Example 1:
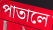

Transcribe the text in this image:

পাতালে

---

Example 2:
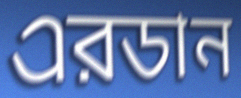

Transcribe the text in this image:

এরডান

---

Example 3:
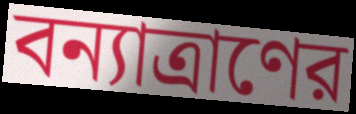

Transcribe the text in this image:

বন্যাত্রাণের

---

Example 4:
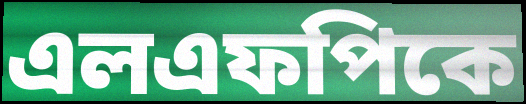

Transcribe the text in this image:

এলএফপিকে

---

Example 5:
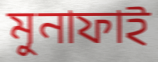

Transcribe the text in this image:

মুনাফাই